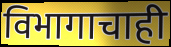
विभागाचाही